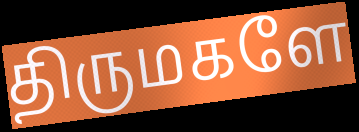
திருமகளே